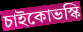
চাইকোভস্কি